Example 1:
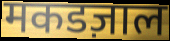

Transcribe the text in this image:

मकडज़ाल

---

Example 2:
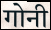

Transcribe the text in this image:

गोनी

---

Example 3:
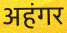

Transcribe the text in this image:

अहंगर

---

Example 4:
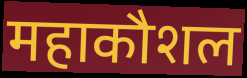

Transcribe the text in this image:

महाकौशल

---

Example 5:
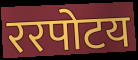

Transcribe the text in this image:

ररपोटय